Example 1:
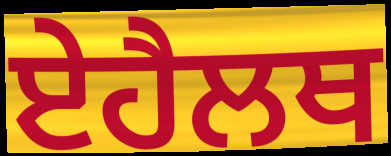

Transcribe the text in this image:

ਏਹੈਲਥ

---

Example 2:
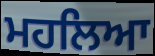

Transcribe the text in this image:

ਮਹਲਿਆ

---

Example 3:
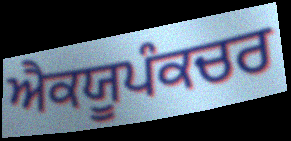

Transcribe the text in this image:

ਐਕਯੂਪੰਕਚਰ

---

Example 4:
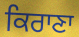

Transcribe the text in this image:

ਕਿਰਾਣਾ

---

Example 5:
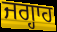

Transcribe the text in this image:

ਜਗ੍ਹਾਹ